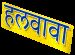
हलवावा